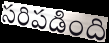
సరిపడింది